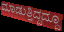
ಮಾಡುತ್ತಿದ್ದದ್ದೂ